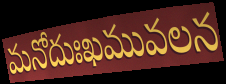
మనోదుఃఖమువలన